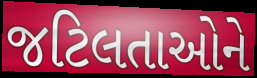
જટિલતાઓને